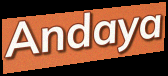
Andaya